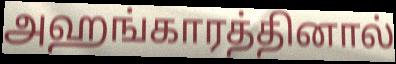
அஹங்காரத்தினால்